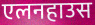
एलनहाउस